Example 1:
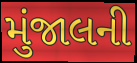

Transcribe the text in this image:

મુંજાલની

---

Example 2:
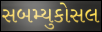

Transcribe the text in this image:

સબમ્યુકોસલ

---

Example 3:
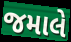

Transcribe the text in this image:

જમાલે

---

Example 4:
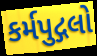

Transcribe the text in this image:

કર્મપુદ્ગલો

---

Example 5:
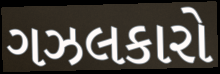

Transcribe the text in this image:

ગઝલકારો